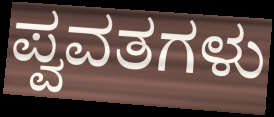
ಪ್ವವತಗಳು